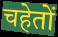
चहेतों